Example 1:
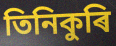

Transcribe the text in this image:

তিনিকুৰি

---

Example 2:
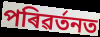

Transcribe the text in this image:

পৰিৱৰ্তনত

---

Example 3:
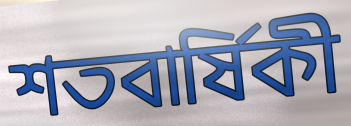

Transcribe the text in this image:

শতবাৰ্ষিকী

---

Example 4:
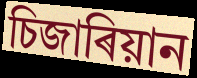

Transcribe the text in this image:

চিজাৰিয়ান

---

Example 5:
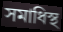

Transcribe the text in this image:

সমাধিস্থ